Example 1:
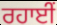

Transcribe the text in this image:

ਰਹਾਈਂ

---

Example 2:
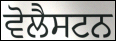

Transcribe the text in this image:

ਵੋਲੈਸਟਨ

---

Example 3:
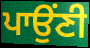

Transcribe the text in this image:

ਪਾਉਂਣੀ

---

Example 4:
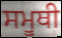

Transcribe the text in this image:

ਸਮੂਥੀ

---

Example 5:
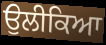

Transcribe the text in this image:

ਉਲੀਕਿਆ